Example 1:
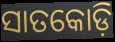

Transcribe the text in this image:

ସାତକୋଡ଼ି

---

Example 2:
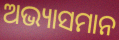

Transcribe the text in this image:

ଅଭ୍ୟାସମାନ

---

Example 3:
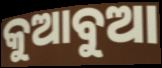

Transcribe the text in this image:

କୁଆବୁଆ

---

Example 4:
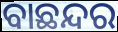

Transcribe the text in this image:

ବାଛନ୍ଦର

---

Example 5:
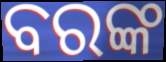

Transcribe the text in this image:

ବରଙ୍କ